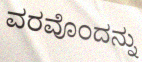
ವರವೊಂದನ್ನು